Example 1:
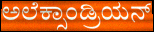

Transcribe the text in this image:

ಅಲೆಕ್ಸಾಂಡ್ರಿಯನ್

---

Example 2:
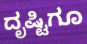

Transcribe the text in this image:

ದೃಷ್ಟಿಗೂ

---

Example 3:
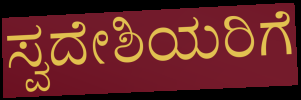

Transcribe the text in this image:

ಸ್ವದೇಶಿಯರಿಗೆ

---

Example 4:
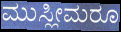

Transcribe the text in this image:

ಮುಸ್ಲೀಮರೂ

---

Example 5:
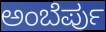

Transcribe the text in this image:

ಅಂಬೆರ್ಪು